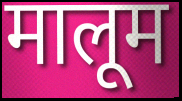
मालूम